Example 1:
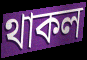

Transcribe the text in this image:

থাকল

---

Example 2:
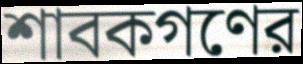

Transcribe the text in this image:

শাবকগণের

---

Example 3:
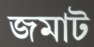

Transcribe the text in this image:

জমাট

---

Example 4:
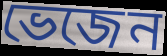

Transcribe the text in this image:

ভেজেন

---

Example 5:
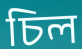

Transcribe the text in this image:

চিল